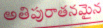
అతిపురాతనమైన